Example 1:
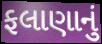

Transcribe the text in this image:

ફલાણાનું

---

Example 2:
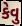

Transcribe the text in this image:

કેવુ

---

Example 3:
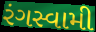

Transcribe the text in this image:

રંગસ્વામી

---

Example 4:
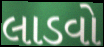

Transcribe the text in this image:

લાડવો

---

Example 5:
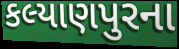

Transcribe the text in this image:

કલ્યાણપુરના